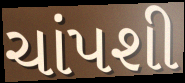
ચાંપશી